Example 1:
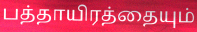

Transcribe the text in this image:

பத்தாயிரத்தையும்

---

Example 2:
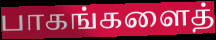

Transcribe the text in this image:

பாகங்களைத்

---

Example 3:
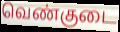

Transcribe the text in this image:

வெண்குடை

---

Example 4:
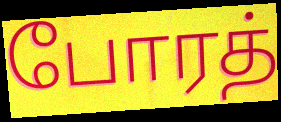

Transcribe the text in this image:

போரத்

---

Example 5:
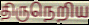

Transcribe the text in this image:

திருநெறிய